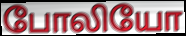
போலியோ